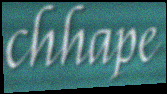
chhape